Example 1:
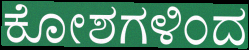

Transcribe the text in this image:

ಕೋಶಗಳಿಂದ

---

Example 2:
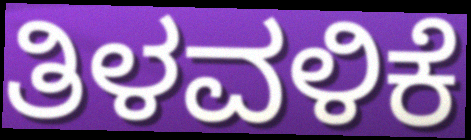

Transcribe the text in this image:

ತಿಳವಳಿಕೆ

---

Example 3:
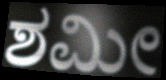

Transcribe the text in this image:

ಶಮೀ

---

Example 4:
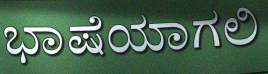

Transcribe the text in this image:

ಭಾಷೆಯಾಗಲಿ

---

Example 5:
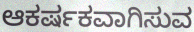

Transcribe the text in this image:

ಆಕರ್ಷಕವಾಗಿಸುವ